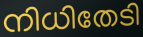
നിധിതേടി